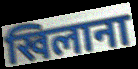
खिलाना